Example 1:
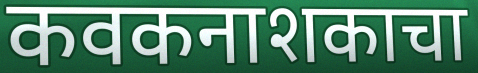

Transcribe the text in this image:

कवकनाशकाचा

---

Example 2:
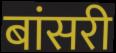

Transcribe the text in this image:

बांसरी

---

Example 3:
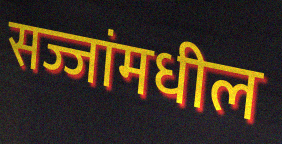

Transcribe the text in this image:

सज्जांमधील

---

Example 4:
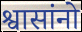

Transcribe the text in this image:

श्वासांनो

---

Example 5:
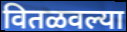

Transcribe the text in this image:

वितळवल्या